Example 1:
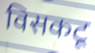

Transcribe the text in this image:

विसकटू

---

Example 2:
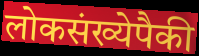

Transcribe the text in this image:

लोकसंख्येपैकी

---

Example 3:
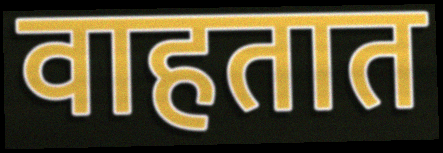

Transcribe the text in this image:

वाहतात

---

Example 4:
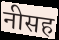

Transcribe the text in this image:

नीसह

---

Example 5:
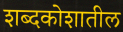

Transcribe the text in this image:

शब्दकोशातील